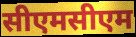
सीएमसीएम